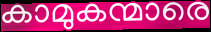
കാമുകന്മാരെ